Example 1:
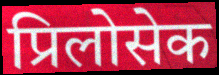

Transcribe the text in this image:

प्रिलोसेक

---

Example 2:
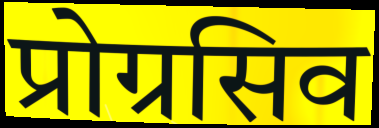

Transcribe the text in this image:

प्रोग्रसिव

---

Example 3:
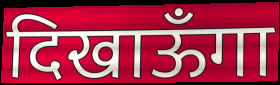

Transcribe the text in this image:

दिखाऊँगा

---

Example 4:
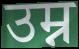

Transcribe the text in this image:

उम्न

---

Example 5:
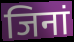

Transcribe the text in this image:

जिनां